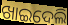
ଖାଇଦେଲି